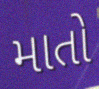
માતો